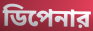
ডিপেনার